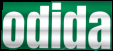
odida